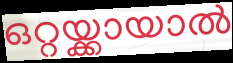
ഒറ്റയ്ക്കായാൽ